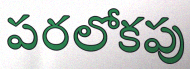
పరలోకపు